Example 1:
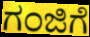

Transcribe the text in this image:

ಗಂಜಿಗೆ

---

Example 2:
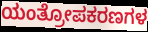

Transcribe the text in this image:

ಯಂತ್ರೋಪಕರಣಗಳ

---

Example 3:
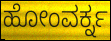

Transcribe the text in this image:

ಹೋಂವರ್ಕ್ನ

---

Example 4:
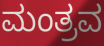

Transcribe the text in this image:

ಮಂತ್ರವ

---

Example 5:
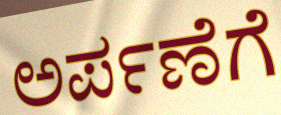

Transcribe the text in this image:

ಅರ್ಪಣೆಗೆ